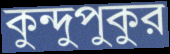
কুন্দুপুকুর